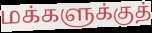
மக்களுக்குத்